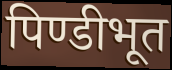
पिण्डीभूत